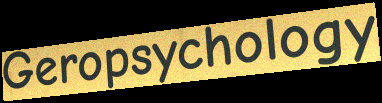
Geropsychology